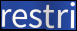
restri